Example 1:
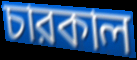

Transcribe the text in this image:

চারকাল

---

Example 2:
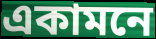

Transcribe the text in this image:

একামনে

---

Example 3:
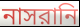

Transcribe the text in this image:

নাসরানি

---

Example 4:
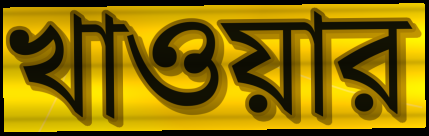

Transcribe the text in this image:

খাওয়ার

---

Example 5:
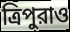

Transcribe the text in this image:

ত্রিপুরাও